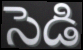
సెడి